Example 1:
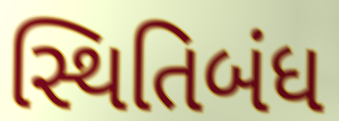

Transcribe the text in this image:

સ્થિતિબંધ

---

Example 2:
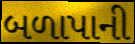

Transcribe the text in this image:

બળાપાની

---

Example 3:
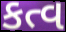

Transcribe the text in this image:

કત્વ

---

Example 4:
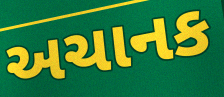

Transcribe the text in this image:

અચાનક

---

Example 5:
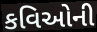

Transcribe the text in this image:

કવિઓની